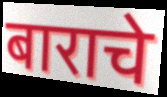
बाराचे